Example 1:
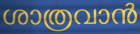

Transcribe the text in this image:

ശാത്രവാൻ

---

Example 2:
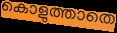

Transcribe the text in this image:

കൊളുത്താതെ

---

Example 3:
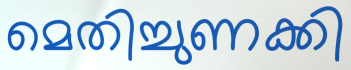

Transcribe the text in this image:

മെതിച്ചുണക്കി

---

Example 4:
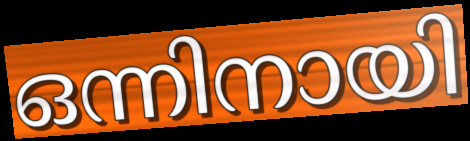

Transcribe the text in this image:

ഒന്നിനായി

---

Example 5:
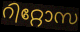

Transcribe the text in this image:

റിറ്റോസ